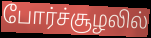
போர்ச்சூழலில்